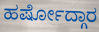
ಹರ್ಷೋದ್ಗಾರ